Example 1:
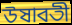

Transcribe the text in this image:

উষাবতী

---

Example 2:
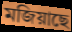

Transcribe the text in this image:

মজিয়াছে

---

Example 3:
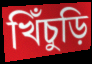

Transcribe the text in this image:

খিঁচুড়ি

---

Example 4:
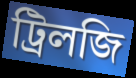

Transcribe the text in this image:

ট্রিলজি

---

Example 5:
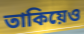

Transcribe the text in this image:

তাকিয়েও